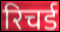
रिचर्ड